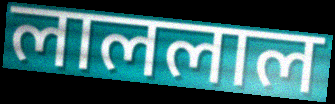
लाललाल